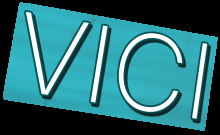
VICI